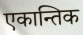
एकान्तिक